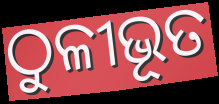
ଠୁଳୀଭୂତ